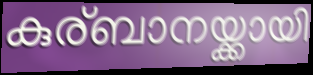
കുര്ബാനയ്ക്കായി